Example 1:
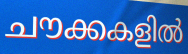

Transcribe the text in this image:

ചൗക്കകളിൽ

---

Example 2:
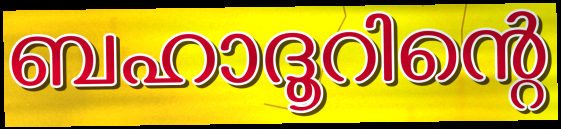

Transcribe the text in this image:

ബഹാദൂറിന്റെ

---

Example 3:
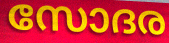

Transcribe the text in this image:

സോദര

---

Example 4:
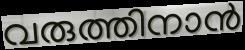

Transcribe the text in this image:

വരുത്തിനാൻ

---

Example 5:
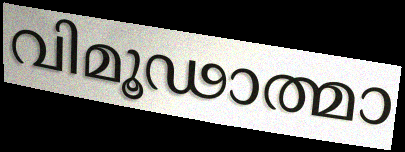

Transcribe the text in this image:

വിമൂഢാത്മാ